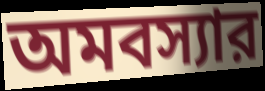
অমবস্যার